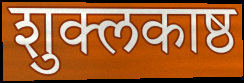
शुक्लकाष्ठ